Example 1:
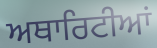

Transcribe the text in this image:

ਅਥਾਰਿਟੀਆਂ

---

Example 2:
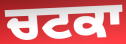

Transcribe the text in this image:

ਚਟਕਾ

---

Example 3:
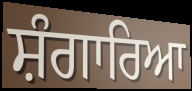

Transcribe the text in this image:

ਸ਼ੰਗਾਰਿਆ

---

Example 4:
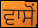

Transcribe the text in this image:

ਵਾਸੋਂ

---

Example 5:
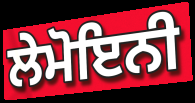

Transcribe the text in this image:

ਲੇਮੋਇਨੀ